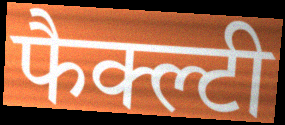
फैक्ल्टी